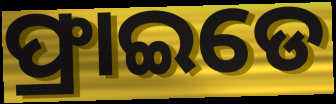
ଫ୍ରାଇଡେ